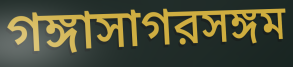
গঙ্গাসাগরসঙ্গম